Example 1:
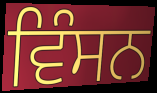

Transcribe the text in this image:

ਵਿੰਸਨ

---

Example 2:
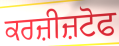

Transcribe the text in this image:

ਕਰਜ਼ੀਜ਼ਟੋਫ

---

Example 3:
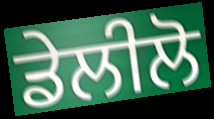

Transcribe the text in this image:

ਡੇਲੀਲੋ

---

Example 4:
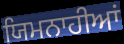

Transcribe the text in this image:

ਯਿਮਨਾਹੀਆਂ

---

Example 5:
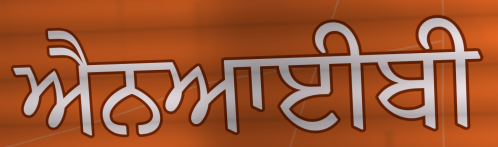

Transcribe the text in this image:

ਐਨਆਈਬੀ